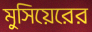
মুসিয়েরের